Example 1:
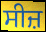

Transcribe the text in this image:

ਸੀਜ਼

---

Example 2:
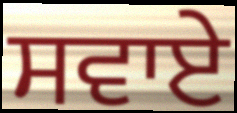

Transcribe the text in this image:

ਸਵਾਏ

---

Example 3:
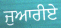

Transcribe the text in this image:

ਜੁਆਰੀਏ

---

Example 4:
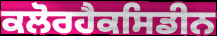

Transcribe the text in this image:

ਕਲੋਰਹੈਕਸਿਡੀਨ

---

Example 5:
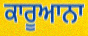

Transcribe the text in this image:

ਕਾਰੂਆਨਾ